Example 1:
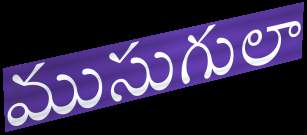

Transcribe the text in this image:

ముసుగులా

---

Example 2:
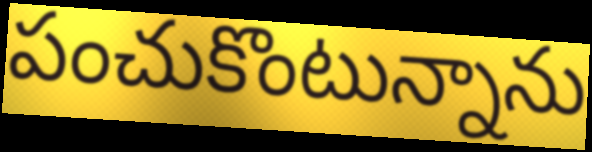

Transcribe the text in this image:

పంచుకొంటున్నాను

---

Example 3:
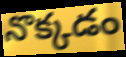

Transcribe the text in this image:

నొక్కడం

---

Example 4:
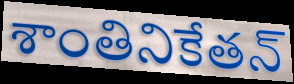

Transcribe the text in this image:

శాంతినికేతన్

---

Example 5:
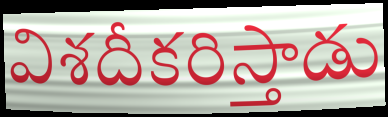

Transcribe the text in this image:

విశదీకరిస్తాడు